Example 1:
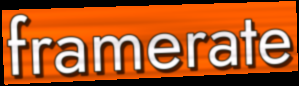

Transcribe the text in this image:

framerate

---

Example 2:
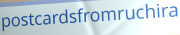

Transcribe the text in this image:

postcardsfromruchira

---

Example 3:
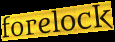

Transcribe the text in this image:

forelock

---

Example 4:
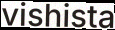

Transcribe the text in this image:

vishista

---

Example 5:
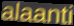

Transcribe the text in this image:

alaanti